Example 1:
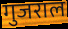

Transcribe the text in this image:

गुजराल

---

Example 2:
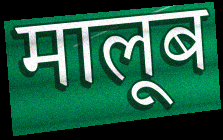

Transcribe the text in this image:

मालूब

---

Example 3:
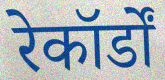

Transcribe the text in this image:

रेकॉर्डों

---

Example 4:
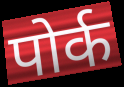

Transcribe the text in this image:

पोर्क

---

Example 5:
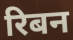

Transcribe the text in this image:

रिबन